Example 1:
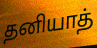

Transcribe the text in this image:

தனியாத்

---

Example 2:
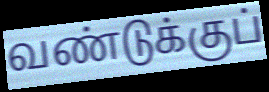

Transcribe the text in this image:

வண்டுக்குப்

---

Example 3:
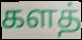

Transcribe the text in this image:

களத்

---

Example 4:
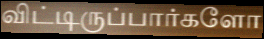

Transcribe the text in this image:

விட்டிருப்பார்களோ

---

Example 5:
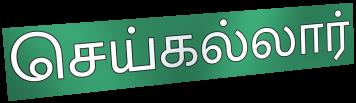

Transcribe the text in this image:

செய்கல்லார்